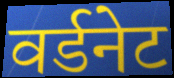
वर्डनेट